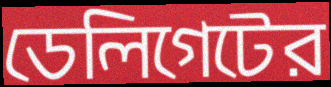
ডেলিগেটের